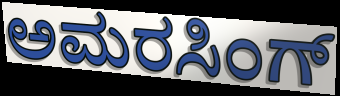
ಅಮರಸಿಂಗ್